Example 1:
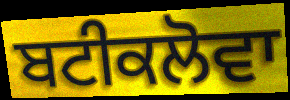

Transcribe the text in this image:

ਬਟੀਕਲੋਵਾ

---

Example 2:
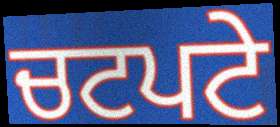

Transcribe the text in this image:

ਚਟਪਟੇ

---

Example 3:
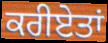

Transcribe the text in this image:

ਕਰੀਏਤਾਂ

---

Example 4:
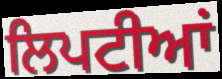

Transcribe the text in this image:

ਲਿਪਟੀਆਂ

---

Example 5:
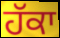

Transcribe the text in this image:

ਹੱਕਾ